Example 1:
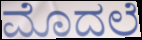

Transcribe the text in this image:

ಮೊದಲೆ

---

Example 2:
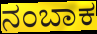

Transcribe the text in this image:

ನಂಬಾಕ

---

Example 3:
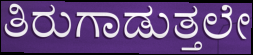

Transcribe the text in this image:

ತಿರುಗಾಡುತ್ತಲೇ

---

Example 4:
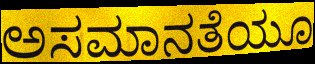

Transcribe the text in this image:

ಅಸಮಾನತೆಯೂ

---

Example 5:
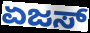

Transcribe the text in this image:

ಏಜಸ್